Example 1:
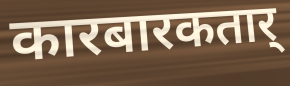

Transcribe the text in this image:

कारबारकतार्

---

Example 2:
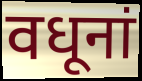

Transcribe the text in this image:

वधूनां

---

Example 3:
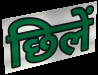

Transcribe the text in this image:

छिलें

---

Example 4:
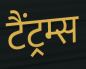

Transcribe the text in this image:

टैंट्रम्स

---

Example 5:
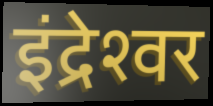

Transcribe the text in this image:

इंद्रेश्वर